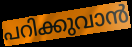
പറിക്കുവാൻ